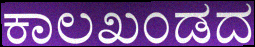
ಕಾಲಖಂಡದ